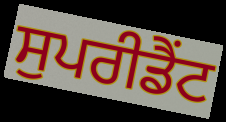
ਸੁਪਰੀਡੈਂਟ